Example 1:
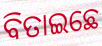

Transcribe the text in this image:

ବିତାଇଛେ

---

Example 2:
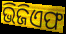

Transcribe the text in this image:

ଭିଜିଏଫ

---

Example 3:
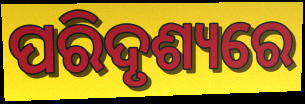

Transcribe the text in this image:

ପରିଦୃଶ୍ୟରେ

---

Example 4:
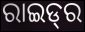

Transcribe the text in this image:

ରାଇଡ୍‌ର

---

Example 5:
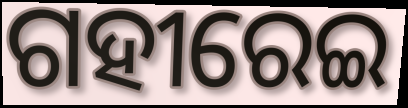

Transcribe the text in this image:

ଗହୀରେଇ